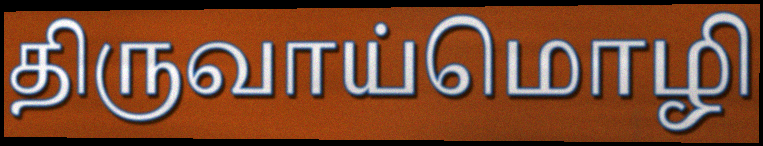
திருவாய்மொழி